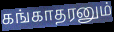
கங்காதரனும்